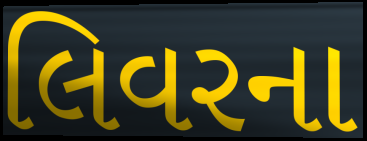
લિવરના